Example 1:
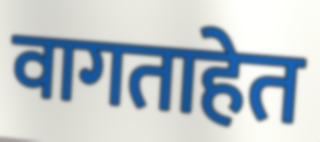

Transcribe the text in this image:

वागताहेत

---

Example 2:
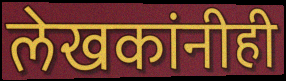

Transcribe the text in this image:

लेखकांनीही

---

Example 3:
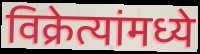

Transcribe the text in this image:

विक्रेत्यांमध्ये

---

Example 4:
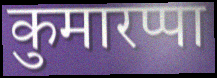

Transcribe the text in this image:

कुमारप्पा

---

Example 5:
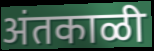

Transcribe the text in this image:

अंतकाळी